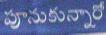
పూనుకున్నారో